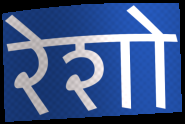
रेशो